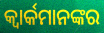
କ୍ୱାର୍କମାନଙ୍କର